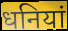
धनियां